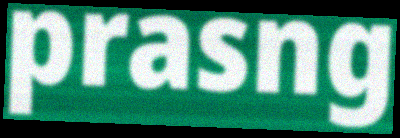
prasng